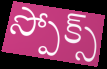
స్పోక్స్